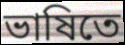
ভাষিতে